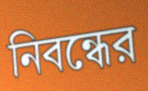
নিবন্ধের